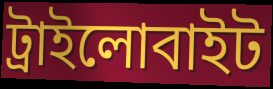
ট্রাইলোবাইট